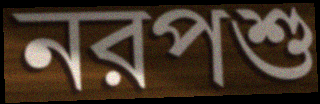
নরপশু